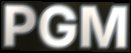
PGM